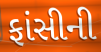
ફાંસીની